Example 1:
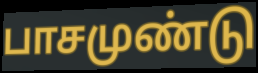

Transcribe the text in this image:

பாசமுண்டு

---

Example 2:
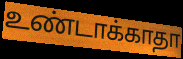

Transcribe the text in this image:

உண்டாக்காதா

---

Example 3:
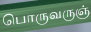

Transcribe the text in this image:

பொருவருஞ்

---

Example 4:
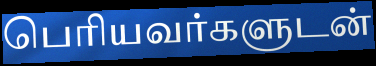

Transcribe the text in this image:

பெரியவர்களுடன்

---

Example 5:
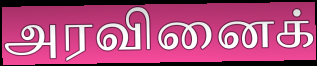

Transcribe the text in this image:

அரவினைக்